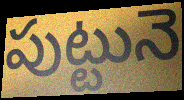
పుట్టునె